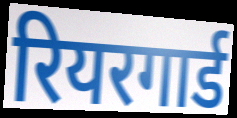
रियरगार्ड